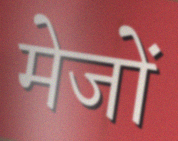
मेजों